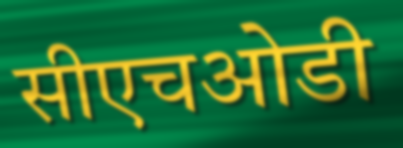
सीएचओडी